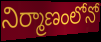
నిర్మాణంలోనో